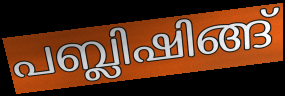
പബ്ലിഷിങ്ങ്